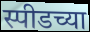
स्पीडच्या